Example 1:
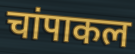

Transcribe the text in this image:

चांपाकल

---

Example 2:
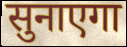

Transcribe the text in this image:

सुनाएगा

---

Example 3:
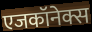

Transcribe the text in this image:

एजकॉनेक्स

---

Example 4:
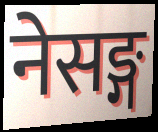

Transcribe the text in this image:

नेसङ्ग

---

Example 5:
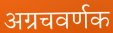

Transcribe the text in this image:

अग्रचवर्णक